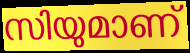
സിയുമാണ്